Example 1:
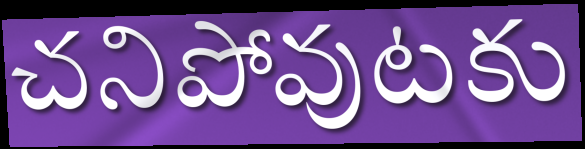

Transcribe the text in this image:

చనిపోవుటకు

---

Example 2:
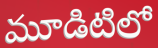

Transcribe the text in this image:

మూడిటిలో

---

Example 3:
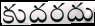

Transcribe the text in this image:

కుదరదు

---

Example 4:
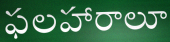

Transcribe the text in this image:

ఫలహారాలూ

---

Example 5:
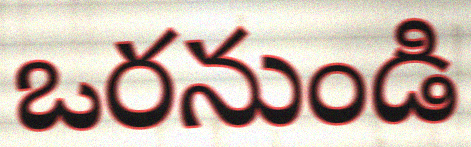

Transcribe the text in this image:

ఒరనుండి